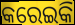
କରେଇକି